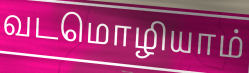
வடமொழியாம்